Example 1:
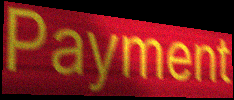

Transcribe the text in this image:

Payment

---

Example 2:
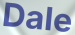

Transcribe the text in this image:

Dale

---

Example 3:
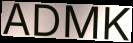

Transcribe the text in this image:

ADMK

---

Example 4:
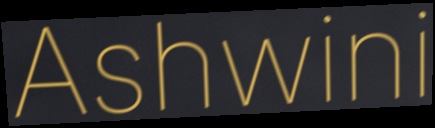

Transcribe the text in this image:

Ashwini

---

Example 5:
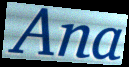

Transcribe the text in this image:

Ana